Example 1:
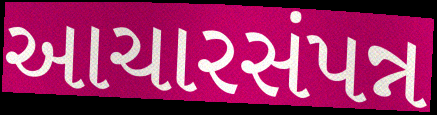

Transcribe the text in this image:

આચારસંપન્ન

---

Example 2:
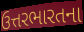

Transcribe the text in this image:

ઉત્તરભારતના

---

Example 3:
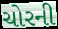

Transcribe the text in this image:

ચોરની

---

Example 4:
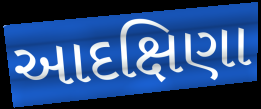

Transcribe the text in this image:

આદક્ષિણા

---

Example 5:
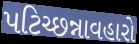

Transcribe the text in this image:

પટિચ્છન્નાવહારો